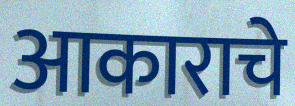
आकाराचे